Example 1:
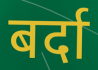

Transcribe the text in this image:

बर्दा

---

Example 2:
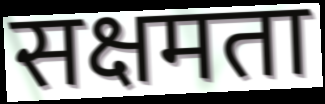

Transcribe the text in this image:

सक्षमता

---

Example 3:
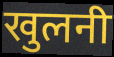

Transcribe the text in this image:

खुलनी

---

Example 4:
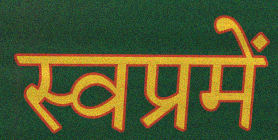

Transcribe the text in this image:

स्वप्रमें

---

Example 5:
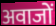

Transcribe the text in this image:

अवाजों